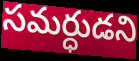
సమర్ధుడని